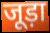
जूड़ा